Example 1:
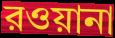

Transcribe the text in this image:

রওয়ানা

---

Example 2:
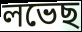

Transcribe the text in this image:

লভেছ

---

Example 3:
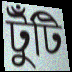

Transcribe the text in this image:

টুঁটি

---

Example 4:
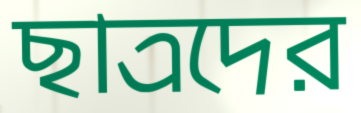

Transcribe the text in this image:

ছাত্রদের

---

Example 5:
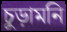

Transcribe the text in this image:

চুড়ামনি